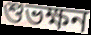
শুভক্ষন